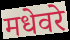
मधेवरे